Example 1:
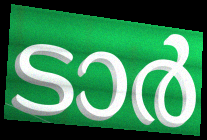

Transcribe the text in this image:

ടാർ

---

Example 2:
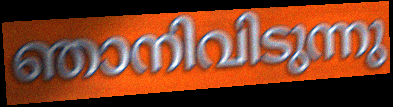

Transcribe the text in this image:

ഞാനിവിടുന്നു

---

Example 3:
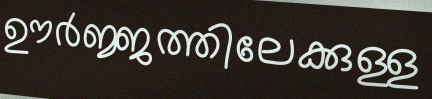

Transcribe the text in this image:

ഊർജ്ജത്തിലേക്കുള്ള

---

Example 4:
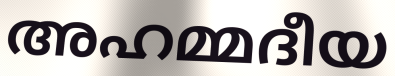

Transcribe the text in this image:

അഹമ്മദീയ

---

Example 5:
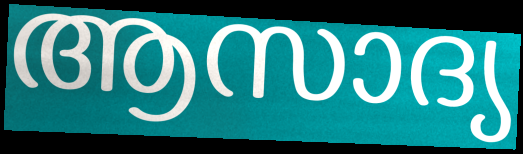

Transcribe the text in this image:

ആസാദ്യ